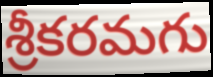
శ్రీకరమగు